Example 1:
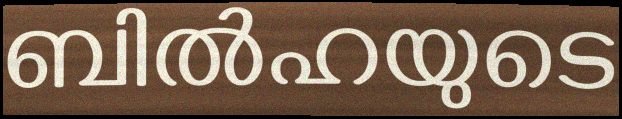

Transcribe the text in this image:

ബിൽഹയുടെ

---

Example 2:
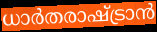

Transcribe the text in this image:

ധാർതരാഷ്ട്രാൻ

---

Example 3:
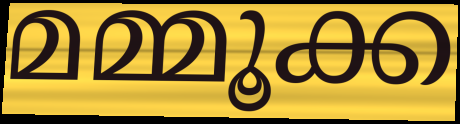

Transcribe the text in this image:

മമ്മൂക്ക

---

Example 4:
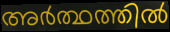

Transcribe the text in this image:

അർത്ഥത്തിൽ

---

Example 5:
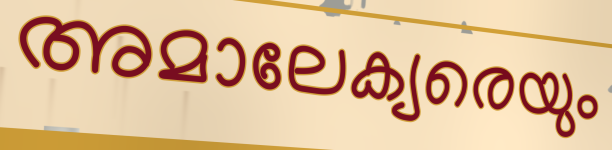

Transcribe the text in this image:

അമാലേക്യരെയും